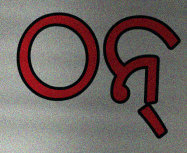
ଠନ୍